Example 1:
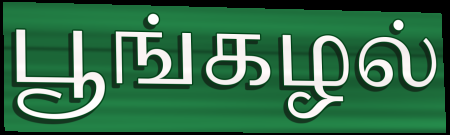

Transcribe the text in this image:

பூங்கழல்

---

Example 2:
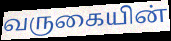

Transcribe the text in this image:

வருகையின்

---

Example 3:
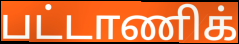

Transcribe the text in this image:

பட்டாணிக்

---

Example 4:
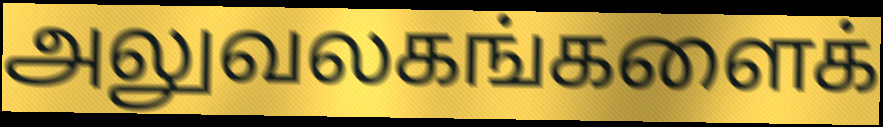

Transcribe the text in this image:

அலுவலகங்களைக்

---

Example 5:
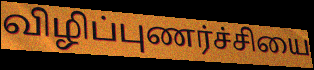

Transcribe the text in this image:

விழிப்புணர்ச்சியை